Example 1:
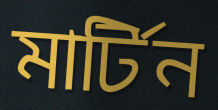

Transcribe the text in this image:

মার্টিন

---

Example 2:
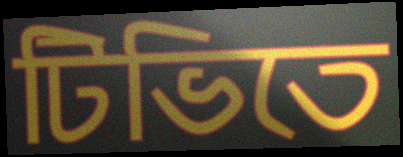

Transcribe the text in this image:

টিভিতে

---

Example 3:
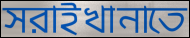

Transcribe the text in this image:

সরাইখানাতে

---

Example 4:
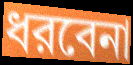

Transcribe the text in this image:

ধরবেনা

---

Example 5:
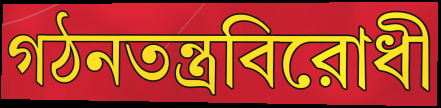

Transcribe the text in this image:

গঠনতন্ত্রবিরোধী